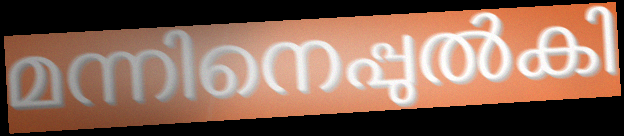
മന്നിനെപ്പുൽകി